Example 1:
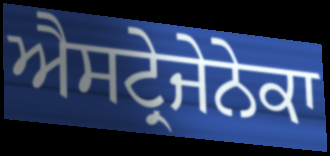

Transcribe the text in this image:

ਐਸਟ੍ਰੇਜੇਨੇਕਾ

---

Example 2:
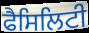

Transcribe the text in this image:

ਫੈਸਿਲਿਟੀ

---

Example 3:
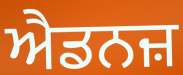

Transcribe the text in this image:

ਐਡਨਜ਼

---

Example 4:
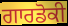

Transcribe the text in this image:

ਗਾਰਡੋਕੀ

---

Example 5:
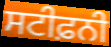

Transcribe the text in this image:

ਸਟੀਫ਼ਨੀ